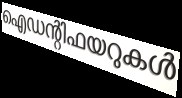
ഐഡന്റിഫയറുകൾ